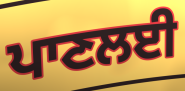
ਪਾਣਲਈ